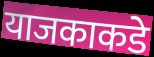
याजकाकडे